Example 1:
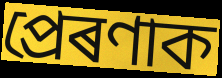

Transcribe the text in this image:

প্ৰেৰণাক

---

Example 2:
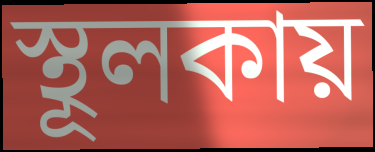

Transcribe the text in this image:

স্থূলকায়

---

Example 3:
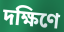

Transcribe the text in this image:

দক্ষিণে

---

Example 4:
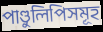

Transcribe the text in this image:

পাণ্ডুলিপিসমূহ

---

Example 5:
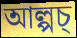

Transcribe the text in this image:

আল্পচ্